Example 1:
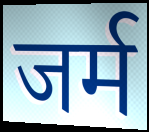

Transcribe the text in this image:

जर्म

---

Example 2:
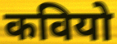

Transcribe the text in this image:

कवियो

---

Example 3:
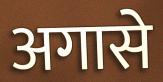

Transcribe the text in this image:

अगासे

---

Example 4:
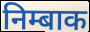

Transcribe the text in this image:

निम्बाक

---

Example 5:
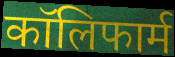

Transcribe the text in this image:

कॉलिफार्म